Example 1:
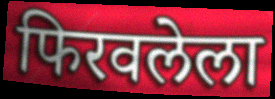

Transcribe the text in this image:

फिरवलेला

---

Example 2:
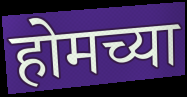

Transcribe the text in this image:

होमच्या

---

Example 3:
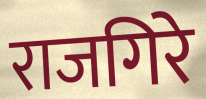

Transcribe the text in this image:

राजगिरे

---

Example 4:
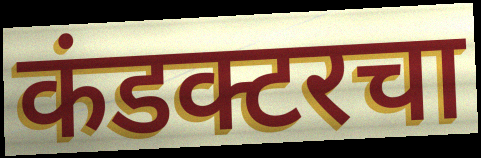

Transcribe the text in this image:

कंडक्टरचा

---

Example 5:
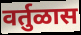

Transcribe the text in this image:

वर्तुळास